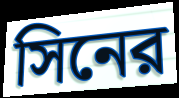
সিনের